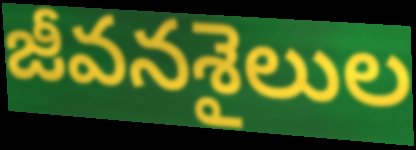
జీవనశైలుల